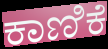
ಕಾಣಿಕೆ